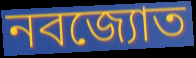
নবজ্যোত